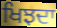
ਖਿਝਦਾ